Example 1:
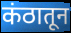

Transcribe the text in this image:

कंठातून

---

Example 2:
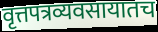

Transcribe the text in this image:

वृत्तपत्रव्यवसायातच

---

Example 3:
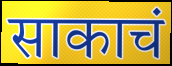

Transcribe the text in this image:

साकाचं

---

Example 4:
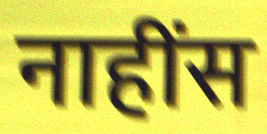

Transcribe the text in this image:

नाहींस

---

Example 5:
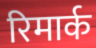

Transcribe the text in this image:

रिमार्क